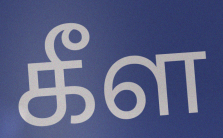
கீள